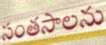
సంతసాలను